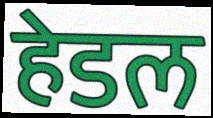
हेडल